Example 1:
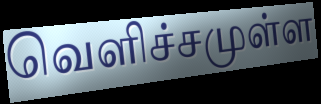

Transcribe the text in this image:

வெளிச்சமுள்ள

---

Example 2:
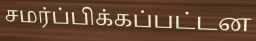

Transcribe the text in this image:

சமர்ப்பிக்கப்பட்டன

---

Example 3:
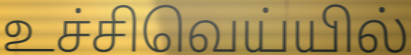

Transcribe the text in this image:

உச்சிவெய்யில்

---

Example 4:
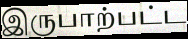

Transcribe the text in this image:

இருபாற்பட்ட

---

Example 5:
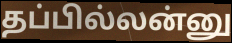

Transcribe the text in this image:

தப்பில்லன்னு